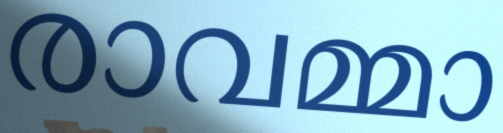
രാവമ്മാ